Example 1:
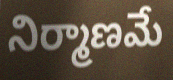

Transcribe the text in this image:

నిర్మాణమే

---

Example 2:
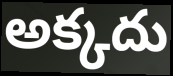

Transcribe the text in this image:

అక్కదు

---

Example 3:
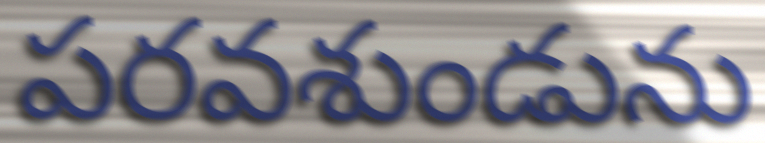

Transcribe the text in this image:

పరవశుండును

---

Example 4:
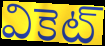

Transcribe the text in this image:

వికెట్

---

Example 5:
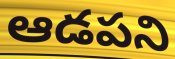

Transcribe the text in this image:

ఆడపని